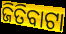
ଜିତିବାଟା